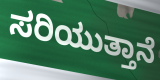
ಸರಿಯುತ್ತಾನೆ